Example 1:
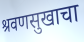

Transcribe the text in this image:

श्रवणसुखाचा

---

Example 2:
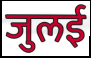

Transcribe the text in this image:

जुलई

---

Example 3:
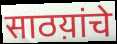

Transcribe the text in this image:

साठय़ांचे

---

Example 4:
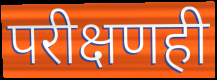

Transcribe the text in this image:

परीक्षणही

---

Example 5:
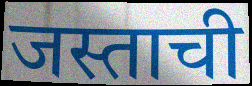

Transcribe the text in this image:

जस्ताची